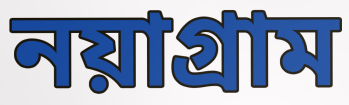
নয়াগ্রাম